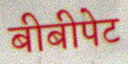
बीबीपेट